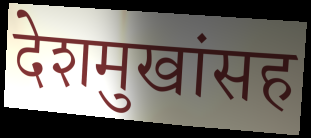
देशमुखांसह